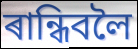
ৰান্ধিবলৈ